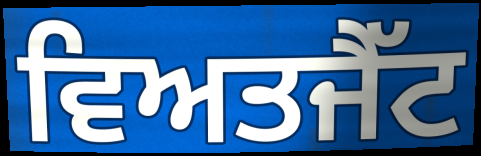
ਵਿਅਤਜੈੱਟ